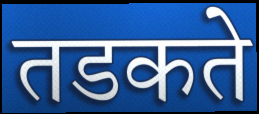
तडकते